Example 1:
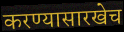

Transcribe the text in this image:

करण्यासारखेच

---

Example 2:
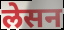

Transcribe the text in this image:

लेसन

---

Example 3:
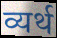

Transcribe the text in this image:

व्यर्थ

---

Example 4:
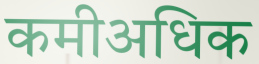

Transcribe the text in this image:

कमीअधिक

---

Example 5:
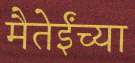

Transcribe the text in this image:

मैतेईंच्या